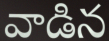
వాడిన